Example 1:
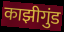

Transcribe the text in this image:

काझीगुंड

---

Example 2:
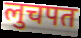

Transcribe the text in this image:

लुचपत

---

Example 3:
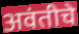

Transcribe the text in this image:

अवंतीचे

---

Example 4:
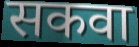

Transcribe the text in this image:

सकवा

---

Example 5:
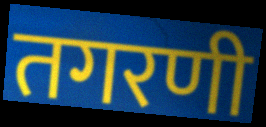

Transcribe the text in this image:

तगरणी